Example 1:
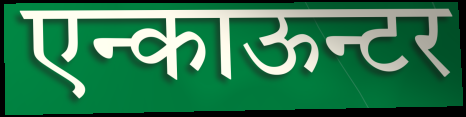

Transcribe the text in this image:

एन्काऊन्टर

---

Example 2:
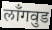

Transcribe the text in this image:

लाँगवुड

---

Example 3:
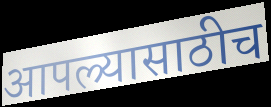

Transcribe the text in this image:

आपल्यासाठीच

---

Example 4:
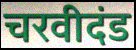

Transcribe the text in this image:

चरवीदंड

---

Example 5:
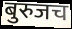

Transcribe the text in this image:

बुरुजच